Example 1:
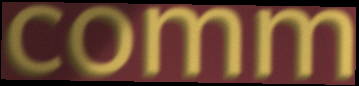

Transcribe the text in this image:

comm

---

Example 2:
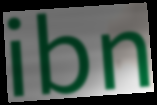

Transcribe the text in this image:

ibn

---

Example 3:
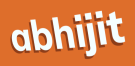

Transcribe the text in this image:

abhijit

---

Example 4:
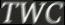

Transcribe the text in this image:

TWC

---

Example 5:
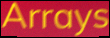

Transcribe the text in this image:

Arrays